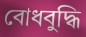
বোধবুদ্ধি